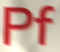
Pf